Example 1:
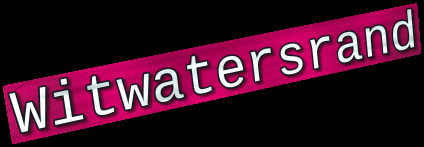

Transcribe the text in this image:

Witwatersrand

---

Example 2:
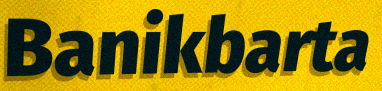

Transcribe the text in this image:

Banikbarta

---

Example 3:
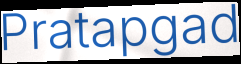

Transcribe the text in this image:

Pratapgad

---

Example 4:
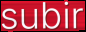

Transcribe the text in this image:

subir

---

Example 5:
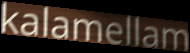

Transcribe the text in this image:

kalamellam